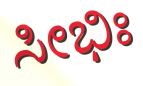
ಸೀಭಿಃ